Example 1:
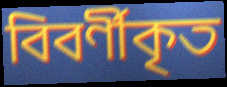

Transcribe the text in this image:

বিবর্ণীকৃত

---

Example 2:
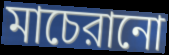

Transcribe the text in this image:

মাচেরানো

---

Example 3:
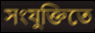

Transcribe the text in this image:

সংযুক্তিতে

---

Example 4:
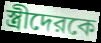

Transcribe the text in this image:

স্ত্রীদেরকে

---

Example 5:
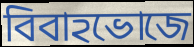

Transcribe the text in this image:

বিবাহভোজে